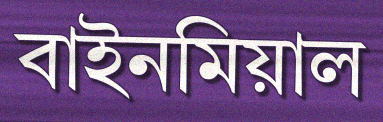
বাইনমিয়াল